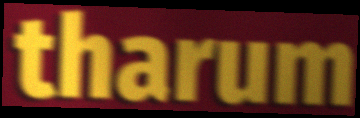
tharum